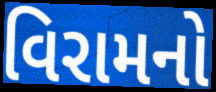
વિરામનો